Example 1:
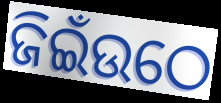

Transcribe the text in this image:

ଜିଇଁଉଠେ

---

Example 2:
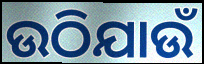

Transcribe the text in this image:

ଉଠିଯାଉଁ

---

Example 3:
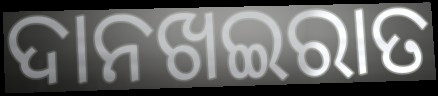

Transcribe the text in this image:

ଦାନଖଇରାତ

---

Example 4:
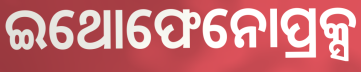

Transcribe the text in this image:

ଇଥୋଫେନୋପ୍ରକ୍ସ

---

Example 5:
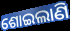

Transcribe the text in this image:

ଶୋଇଲାଣି